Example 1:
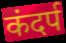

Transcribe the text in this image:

कंदर्प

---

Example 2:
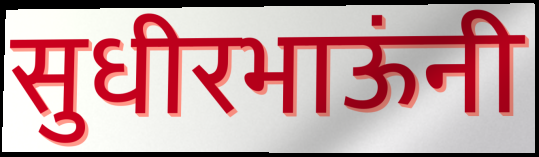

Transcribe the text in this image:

सुधीरभाऊंनी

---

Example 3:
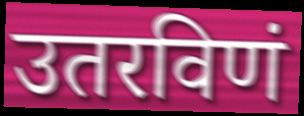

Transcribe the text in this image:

उतरविणं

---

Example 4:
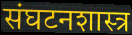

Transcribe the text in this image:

संघटनशास्त्र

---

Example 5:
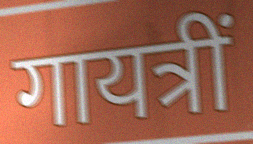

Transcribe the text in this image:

गायत्रीं